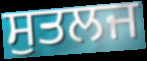
ਸੁਤਲਜ